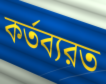
কর্তব্যরত